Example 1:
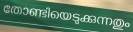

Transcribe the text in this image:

തോണ്ടിയെടുക്കുന്നതും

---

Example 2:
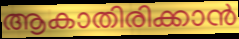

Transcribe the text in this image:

ആകാതിരിക്കാൻ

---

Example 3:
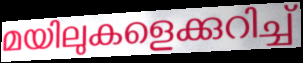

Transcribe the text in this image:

മയിലുകളെക്കുറിച്ച്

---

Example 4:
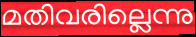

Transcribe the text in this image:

മതിവരില്ലെന്നു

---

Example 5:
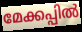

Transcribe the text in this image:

മേക്കപ്പിൽ